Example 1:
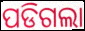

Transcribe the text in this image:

ପଡିଗଲା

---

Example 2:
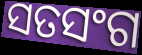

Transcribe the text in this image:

ସତସଂଗ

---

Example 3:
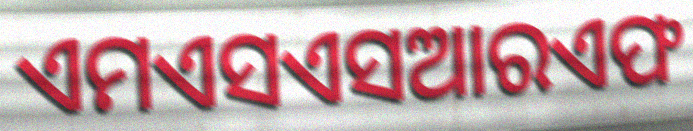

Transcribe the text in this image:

ଏମଏସଏସଆରଏଫ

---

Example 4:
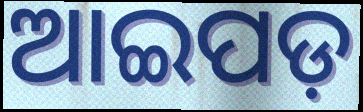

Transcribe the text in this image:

ଆଇପଡ଼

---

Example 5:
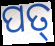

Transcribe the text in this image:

ପତ୍